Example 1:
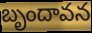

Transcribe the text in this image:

బృందావన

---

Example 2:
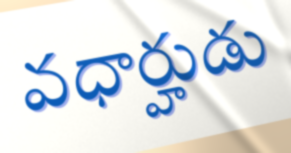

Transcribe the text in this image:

వధార్హుడు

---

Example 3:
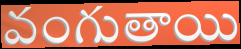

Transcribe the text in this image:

వంగుతాయి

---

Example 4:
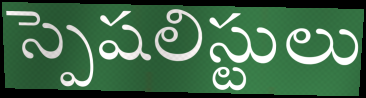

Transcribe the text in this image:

స్పెషలిస్టులు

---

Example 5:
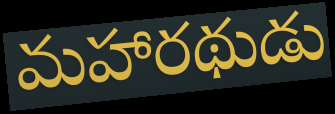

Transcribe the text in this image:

మహారథుడు